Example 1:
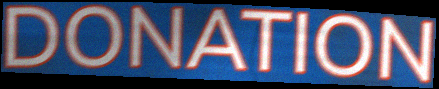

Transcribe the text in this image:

DONATION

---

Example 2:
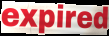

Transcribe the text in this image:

expired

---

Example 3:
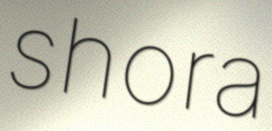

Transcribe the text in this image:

shora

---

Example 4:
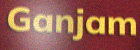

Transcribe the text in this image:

Ganjam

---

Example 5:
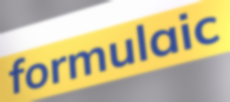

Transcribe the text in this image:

formulaic